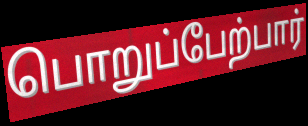
பொறுப்பேற்பார்